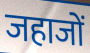
जहाजों